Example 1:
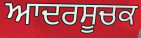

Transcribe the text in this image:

ਆਦਰਸੂਚਕ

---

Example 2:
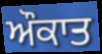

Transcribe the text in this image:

ਔਕਾਤ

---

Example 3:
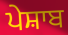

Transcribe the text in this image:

ਪੇਸ਼ਾਬ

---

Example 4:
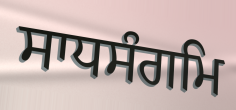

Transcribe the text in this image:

ਸਾਧਸੰਗਮਿ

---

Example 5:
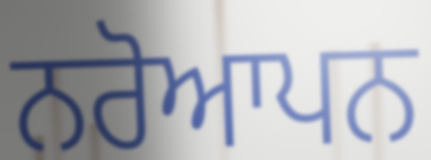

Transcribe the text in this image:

ਨਰੋਆਪਨ